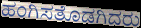
ಹಂಗಿಸತೊಡಗಿದರು